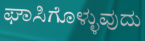
ಘಾಸಿಗೊಳ್ಳುವುದು